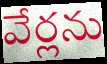
వేర్లను